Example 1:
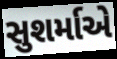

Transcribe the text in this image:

સુશર્માએ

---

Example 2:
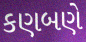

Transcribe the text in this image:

કણબણે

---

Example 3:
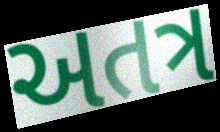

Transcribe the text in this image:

અતત્ર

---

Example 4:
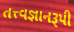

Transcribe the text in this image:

તત્ત્વજ્ઞાનરૂપી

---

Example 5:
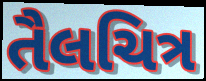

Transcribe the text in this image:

તૈલચિત્ર